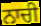
ਨਾਚੀ